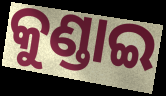
କୁଣ୍ଡାଇ